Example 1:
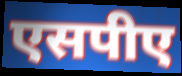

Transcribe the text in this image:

एसपीए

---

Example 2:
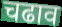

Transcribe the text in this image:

चढाव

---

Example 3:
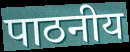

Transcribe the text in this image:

पाठनीय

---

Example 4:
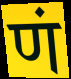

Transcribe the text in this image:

णं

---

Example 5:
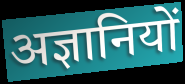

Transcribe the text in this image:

अज्ञानियों